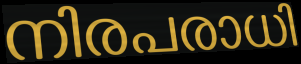
നിരപരാധി